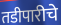
तडीपारीचे